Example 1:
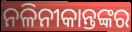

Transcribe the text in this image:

ନଳିନୀକାନ୍ତଙ୍କର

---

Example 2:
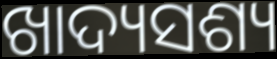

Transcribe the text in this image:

ଖାଦ୍ୟସଶ୍ୟ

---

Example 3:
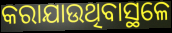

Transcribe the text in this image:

କରାଯାଉଥିବାସ୍ଥଳେ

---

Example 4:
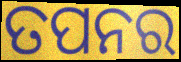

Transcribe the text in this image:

ତପନର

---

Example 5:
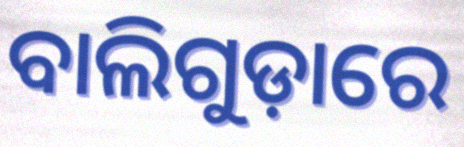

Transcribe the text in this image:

ବାଲିଗୁଡ଼ାରେ